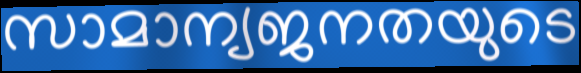
സാമാന്യജനതയുടെ